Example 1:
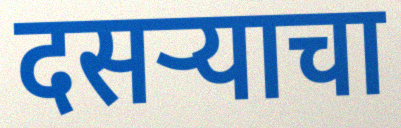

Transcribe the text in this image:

दसऱ्याचा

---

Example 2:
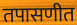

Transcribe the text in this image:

तपासणीत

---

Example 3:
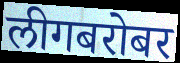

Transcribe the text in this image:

लीगबरोबर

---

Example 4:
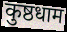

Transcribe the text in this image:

कुष्ठधाम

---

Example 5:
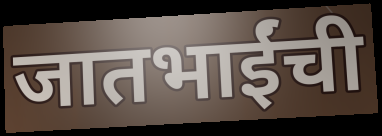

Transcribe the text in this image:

जातभाईंची